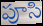
పూసి